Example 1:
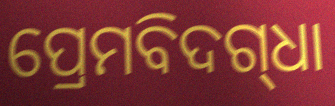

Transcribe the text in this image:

ପ୍ରେମବିଦଗ୍‍ଧା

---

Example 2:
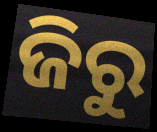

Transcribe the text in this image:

ଜିରୁ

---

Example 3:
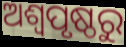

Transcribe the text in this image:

ଅଶ୍ଵପୃଷ୍ଠରୁ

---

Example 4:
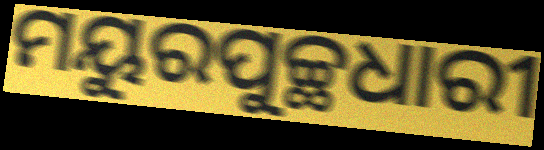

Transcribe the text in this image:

ମୟୁରପୁଚ୍ଛଧାରୀ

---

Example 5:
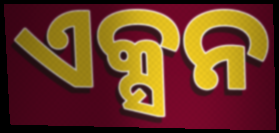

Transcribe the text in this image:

ଏକ୍ସନ